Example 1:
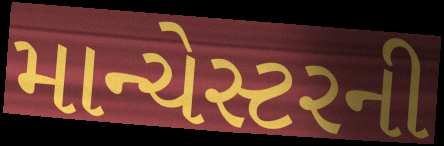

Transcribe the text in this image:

માન્ચેસ્ટરની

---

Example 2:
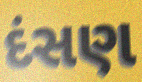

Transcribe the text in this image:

દંસણ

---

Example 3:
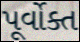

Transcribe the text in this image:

પૂર્વોક્ત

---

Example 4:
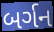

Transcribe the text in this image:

બર્ગન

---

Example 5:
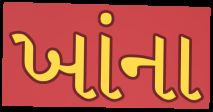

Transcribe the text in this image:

ખાંના